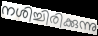
നശിച്ചിരിക്കുന്നു